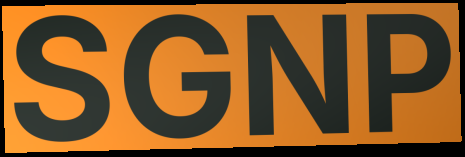
SGNP